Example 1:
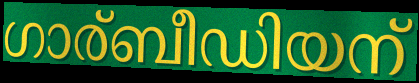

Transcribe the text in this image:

ഗാര്ബീഡിയന്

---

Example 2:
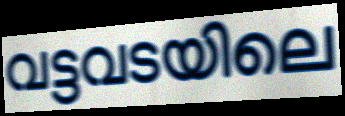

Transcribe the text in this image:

വട്ടവടയിലെ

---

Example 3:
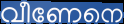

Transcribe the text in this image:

വീണേനെ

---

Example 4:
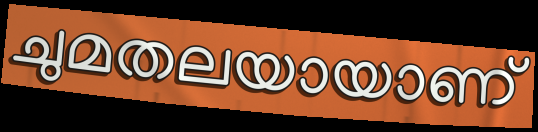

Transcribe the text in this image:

ചുമതലയായാണ്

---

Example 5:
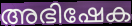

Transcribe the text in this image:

അഭിഷേക